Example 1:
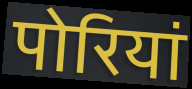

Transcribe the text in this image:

पोरियां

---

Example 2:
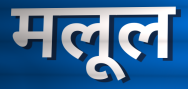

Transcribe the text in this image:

मलूल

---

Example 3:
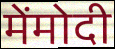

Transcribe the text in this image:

मेंमोदी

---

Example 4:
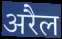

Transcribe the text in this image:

अरैल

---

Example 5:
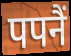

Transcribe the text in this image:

पपनैं